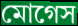
মোগেস